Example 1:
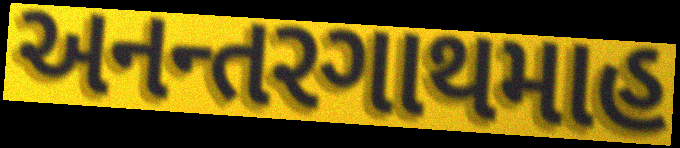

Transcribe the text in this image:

અનન્તરગાથમાહ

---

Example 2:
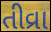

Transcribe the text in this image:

તીવ્રા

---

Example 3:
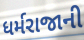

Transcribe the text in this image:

ધર્મરાજાની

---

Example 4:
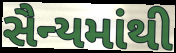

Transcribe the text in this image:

સૈન્યમાંથી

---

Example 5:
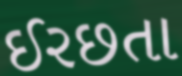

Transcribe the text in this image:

ઈરછતા